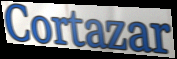
Cortazar